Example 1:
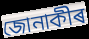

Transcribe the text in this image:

জোনাকীৰ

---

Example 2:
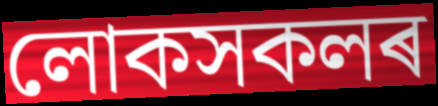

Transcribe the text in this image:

লোকসকলৰ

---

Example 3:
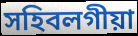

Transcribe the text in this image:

সহিবলগীয়া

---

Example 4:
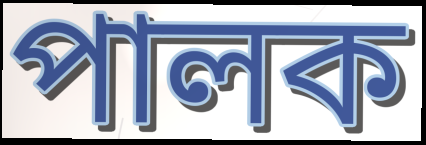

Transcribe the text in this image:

পালক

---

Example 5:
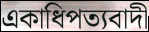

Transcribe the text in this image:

একাধিপত্যবাদী